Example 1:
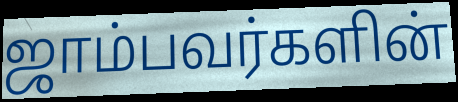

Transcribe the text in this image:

ஜாம்பவர்களின்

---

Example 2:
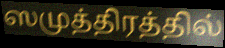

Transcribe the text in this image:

ஸமுத்திரத்தில்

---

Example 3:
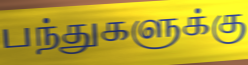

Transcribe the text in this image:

பந்துகளுக்கு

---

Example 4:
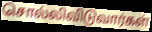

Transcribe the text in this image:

சொல்லிவிடுவார்கள்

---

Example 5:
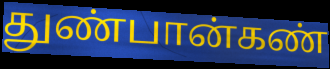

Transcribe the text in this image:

துண்பான்கண்